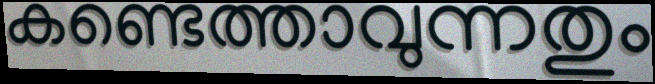
കണ്ടെത്താവുന്നതും